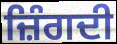
ਜ਼ਿੰਗਦੀ